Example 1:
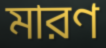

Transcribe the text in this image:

মারণ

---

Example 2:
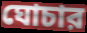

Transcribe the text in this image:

ঘোচার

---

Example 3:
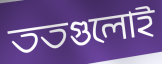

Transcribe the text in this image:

ততগুলোই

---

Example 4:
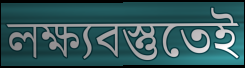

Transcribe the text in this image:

লক্ষ্যবস্তুতেই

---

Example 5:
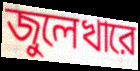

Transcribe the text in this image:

জুলেখারে